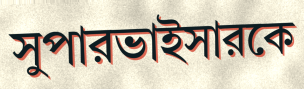
সুপারভাইসারকে